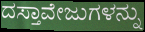
ದಸ್ತಾವೇಜುಗಳನ್ನು